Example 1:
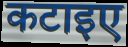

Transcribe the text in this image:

कटाइए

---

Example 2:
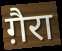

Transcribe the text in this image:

ग़ैरा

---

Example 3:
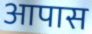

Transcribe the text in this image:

आपास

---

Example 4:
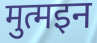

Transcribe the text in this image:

मुत्मइन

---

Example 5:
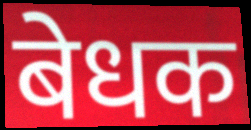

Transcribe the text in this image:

बेधक